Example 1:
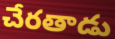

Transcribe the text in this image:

చేరతాడు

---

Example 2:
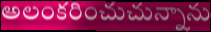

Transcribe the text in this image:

అలంకరించుచున్నాను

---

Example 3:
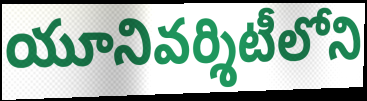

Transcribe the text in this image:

యూనివర్శిటీలోని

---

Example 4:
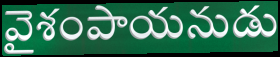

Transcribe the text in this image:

వైశంపాయనుడు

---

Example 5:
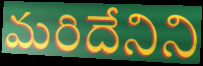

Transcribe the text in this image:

మరిదేనిని